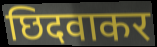
छिदवाकर